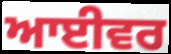
ਆਈਵਰ